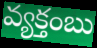
వ్యక్తంబు